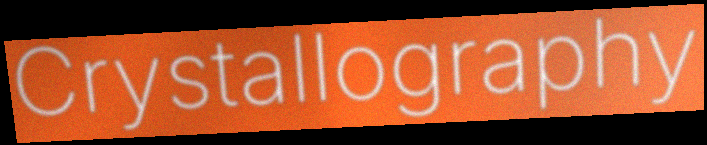
Crystallography